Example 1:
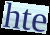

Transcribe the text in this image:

hte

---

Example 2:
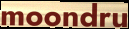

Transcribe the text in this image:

moondru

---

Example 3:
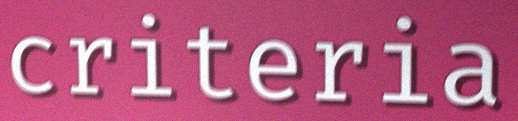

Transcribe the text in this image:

criteria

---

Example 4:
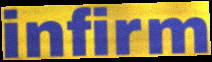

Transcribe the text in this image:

infirm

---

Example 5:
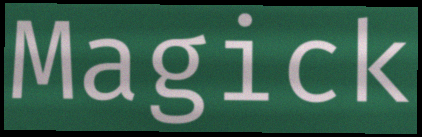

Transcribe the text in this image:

Magick